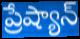
ప్రేష్యాన్